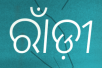
ରାଁଡ଼ୀ